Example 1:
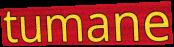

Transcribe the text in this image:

tumane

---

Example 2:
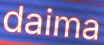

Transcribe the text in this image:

daima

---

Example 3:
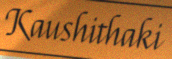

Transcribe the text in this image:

Kaushithaki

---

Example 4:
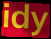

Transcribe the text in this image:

idy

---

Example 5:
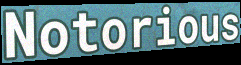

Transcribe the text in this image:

Notorious